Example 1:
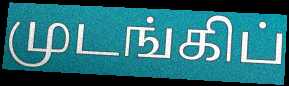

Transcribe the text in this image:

முடங்கிப்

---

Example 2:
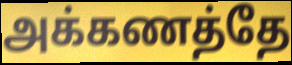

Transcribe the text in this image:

அக்கணத்தே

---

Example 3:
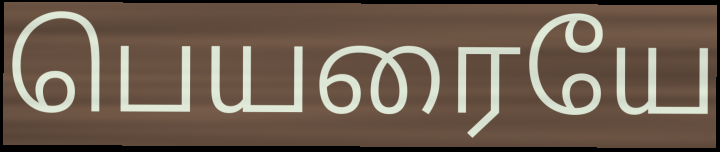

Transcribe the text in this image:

பெயரையே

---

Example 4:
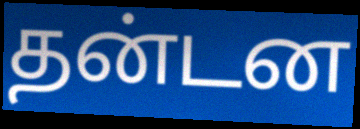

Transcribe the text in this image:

தன்டன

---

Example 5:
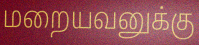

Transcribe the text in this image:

மறையவனுக்கு